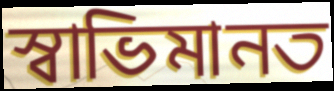
স্বাভিমানত